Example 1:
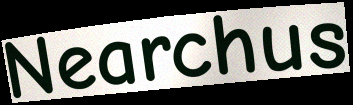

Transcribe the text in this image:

Nearchus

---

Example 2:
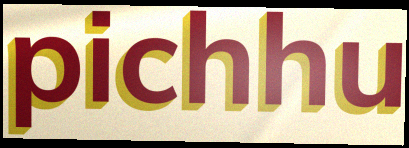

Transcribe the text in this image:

pichhu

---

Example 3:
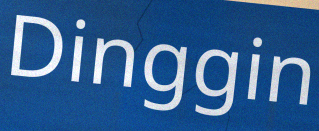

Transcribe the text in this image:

Dinggin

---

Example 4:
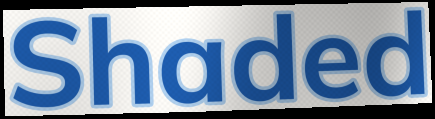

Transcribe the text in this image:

Shaded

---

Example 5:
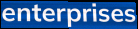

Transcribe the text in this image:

enterprises